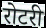
रोटरी